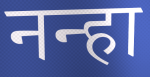
नन्हा